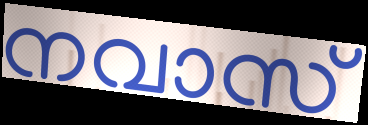
നവാസ്